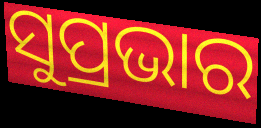
ସୁପ୍ରଭାର